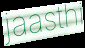
jaasthi